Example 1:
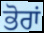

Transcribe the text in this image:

ਭੋਰਾਂ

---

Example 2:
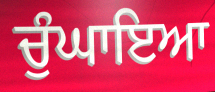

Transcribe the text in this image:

ਚੁੰਘਾਇਆ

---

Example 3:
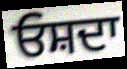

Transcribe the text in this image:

ਓਸ਼ਦਾ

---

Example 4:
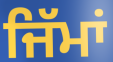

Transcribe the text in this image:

ਜਿੱਮਾਂ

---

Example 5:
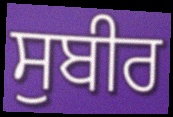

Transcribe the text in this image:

ਸੁਬੀਰ